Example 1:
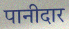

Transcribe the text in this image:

पानीदार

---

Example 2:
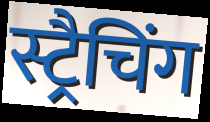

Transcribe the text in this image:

स्ट्रैचिंग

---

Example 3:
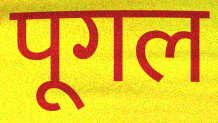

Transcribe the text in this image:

पूगल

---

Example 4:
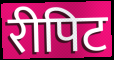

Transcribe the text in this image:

रीपिट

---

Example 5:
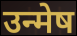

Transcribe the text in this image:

उन्मेष